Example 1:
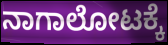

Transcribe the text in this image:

ನಾಗಾಲೋಟಕ್ಕೆ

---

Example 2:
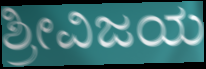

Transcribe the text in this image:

ಶ್ರೀವಿಜಯ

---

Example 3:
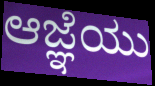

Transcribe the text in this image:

ಆಜ್ಞೆಯು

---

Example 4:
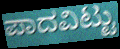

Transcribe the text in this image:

ಪಾದವಿಟ್ಟು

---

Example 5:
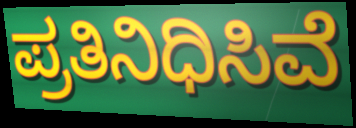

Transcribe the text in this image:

ಪ್ರತಿನಿಧಿಸಿವೆ